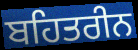
ਬਹਿਤਰੀਨ